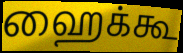
ஹைக்கூ